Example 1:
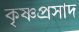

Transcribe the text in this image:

কৃষ্ণপ্রসাদ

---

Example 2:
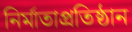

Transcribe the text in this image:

নির্মাতাপ্রতিষ্ঠান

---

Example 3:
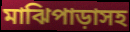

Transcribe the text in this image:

মাঝিপাড়াসহ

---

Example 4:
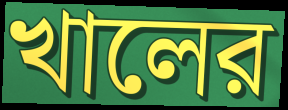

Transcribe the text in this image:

খালের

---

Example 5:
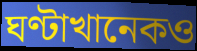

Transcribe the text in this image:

ঘণ্টাখানেকও